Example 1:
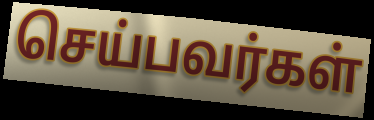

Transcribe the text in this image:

செய்பவர்கள்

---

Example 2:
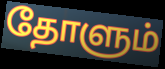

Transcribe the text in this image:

தோளும்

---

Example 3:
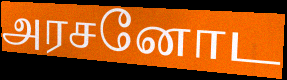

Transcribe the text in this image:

அரசனோட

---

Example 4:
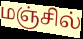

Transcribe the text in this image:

மஞ்சில்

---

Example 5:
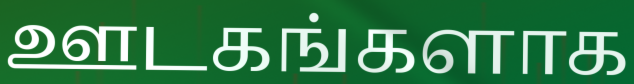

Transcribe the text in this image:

ஊடகங்களாக